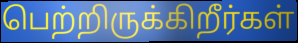
பெற்றிருக்கிறீர்கள்